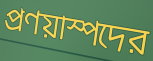
প্রণয়াস্পদের